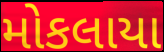
મોકલાયા